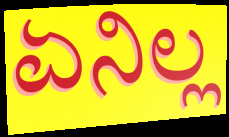
ಏನಿಲ್ಲ